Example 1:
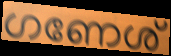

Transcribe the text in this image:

ഗണേശ്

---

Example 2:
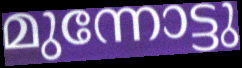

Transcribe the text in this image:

മുന്നോട്ടു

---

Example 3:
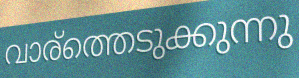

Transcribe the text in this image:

വാര്ത്തെടുക്കുന്നു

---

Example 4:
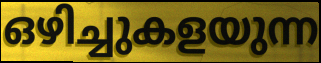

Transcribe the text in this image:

ഒഴിച്ചുകളയുന്ന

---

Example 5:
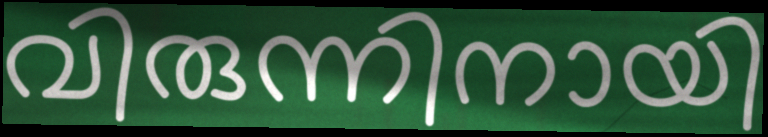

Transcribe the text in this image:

വിരുന്നിനായി